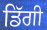
ਡਿੱਗੀ